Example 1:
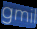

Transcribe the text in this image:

gmil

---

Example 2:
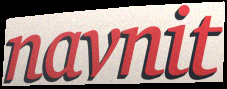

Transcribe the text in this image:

navnit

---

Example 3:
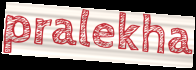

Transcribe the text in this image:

pralekha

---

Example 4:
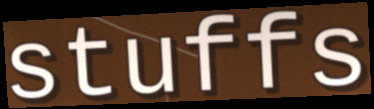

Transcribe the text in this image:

stuffs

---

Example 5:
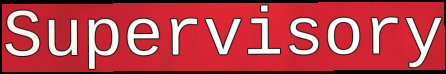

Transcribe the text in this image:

Supervisory